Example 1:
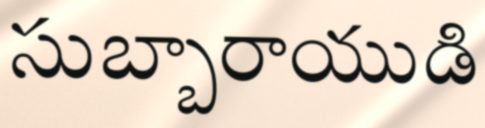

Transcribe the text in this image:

సుబ్బారాయుడి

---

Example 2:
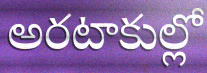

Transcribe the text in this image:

అరటాకుల్లో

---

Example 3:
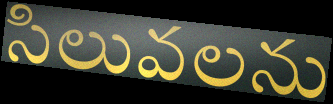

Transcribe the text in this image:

సిలువలను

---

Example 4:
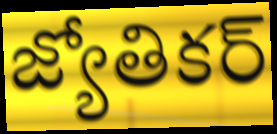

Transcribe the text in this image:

జ్యోతికర్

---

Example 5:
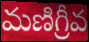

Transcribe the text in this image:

మణిగ్రీవ